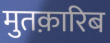
मुतक़ारिब